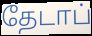
தேடாப்